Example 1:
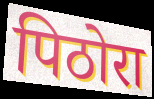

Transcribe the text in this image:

पिठोरा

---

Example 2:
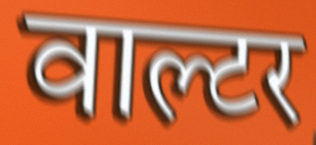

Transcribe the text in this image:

वाल्टर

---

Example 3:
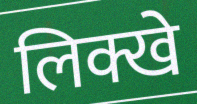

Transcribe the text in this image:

लिक्खे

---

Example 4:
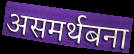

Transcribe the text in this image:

असमर्थबना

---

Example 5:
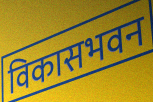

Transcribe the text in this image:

विकासभवन